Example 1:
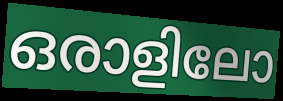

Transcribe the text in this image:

ഒരാളിലോ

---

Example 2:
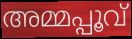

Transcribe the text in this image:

അമ്മപ്പൂവ്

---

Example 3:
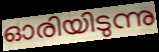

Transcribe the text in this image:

ഓരിയിടുന്നു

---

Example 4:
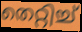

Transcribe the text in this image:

തെറ്റിച്ച്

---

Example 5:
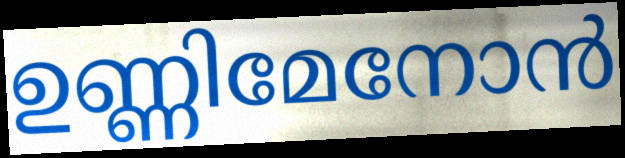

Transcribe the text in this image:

ഉണ്ണിമേനോൻ